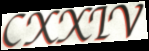
CXXIV